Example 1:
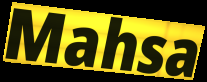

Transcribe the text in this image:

Mahsa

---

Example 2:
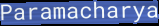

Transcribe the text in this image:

Paramacharya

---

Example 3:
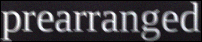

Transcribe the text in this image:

prearranged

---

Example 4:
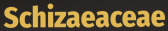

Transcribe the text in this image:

Schizaeaceae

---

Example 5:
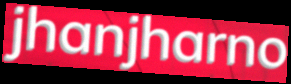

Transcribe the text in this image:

jhanjharno